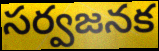
సర్వజనక